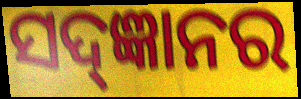
ସଦ୍‌ଜ୍ଞାନର